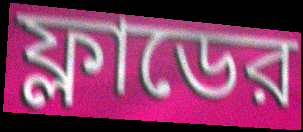
ফ্লাডের